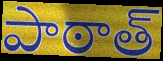
పాఠాత్